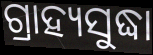
ଗ୍ରାହ୍ୟସୁଦ୍ଧା